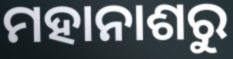
ମହାନାଶରୁ